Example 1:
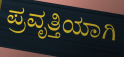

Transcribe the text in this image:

ಪ್ರವೃತ್ತಿಯಾಗಿ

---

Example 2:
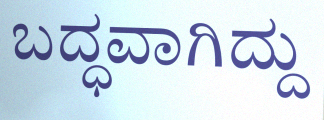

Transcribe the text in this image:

ಬದ್ಧವಾಗಿದ್ದು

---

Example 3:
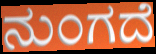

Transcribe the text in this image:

ನುಂಗದೆ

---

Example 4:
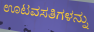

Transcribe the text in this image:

ಊಟವಸತಿಗಳನ್ನು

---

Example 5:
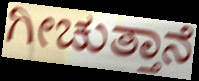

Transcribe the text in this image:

ಗೀಚುತ್ತಾನೆ